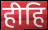
हीहि